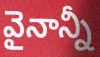
వైనాన్నీ